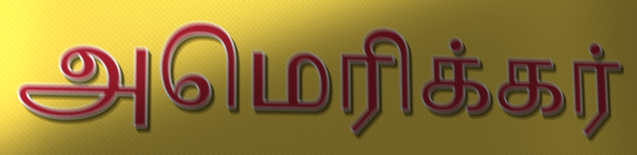
அமெரிக்கர்